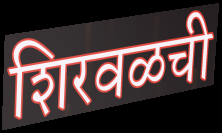
शिरवळची